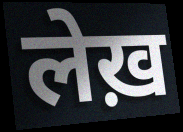
लेख़